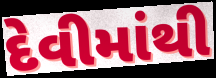
દેવીમાંથી